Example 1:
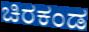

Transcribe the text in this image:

ಚಿರಕಂಡ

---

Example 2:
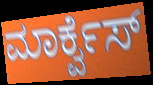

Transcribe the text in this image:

ಮಾರ್ಕ್ವೆಸ್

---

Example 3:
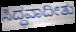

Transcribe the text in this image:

ಸಿದ್ಧವಾದೀತು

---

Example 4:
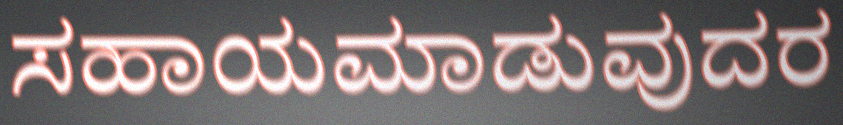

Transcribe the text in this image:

ಸಹಾಯಮಾಡುವುದರ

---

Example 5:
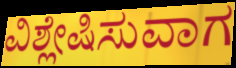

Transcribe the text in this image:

ವಿಶ್ಲೇಷಿಸುವಾಗ